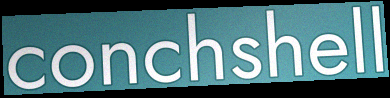
conchshell